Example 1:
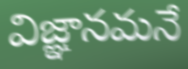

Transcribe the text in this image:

విజ్ఞానమనే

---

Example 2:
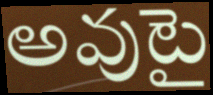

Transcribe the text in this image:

అవుటై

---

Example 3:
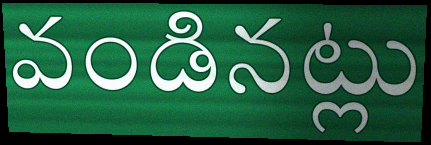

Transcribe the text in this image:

వండినట్లు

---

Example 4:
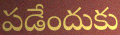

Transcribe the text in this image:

పడేందుకు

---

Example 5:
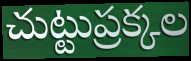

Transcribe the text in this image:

చుట్టుప్రక్కల